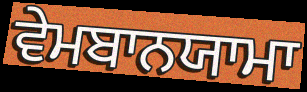
ਵੇਮਬਾਨਯਾਮਾ